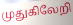
முதுகிலேறி